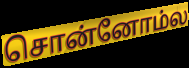
சொன்னோம்ல